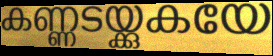
കണ്ണടയ്ക്കുകയേ